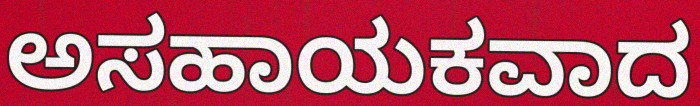
ಅಸಹಾಯಕವಾದ